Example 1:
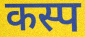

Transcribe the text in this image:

कस्प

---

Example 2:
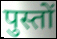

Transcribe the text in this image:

पुस्तों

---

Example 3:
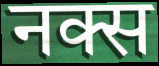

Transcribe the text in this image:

नक्स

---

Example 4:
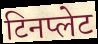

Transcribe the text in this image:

टिनप्लेट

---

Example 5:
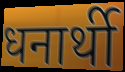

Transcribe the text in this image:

धनार्थी